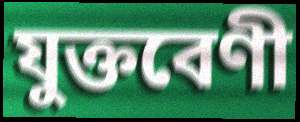
যুক্তবেণী